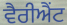
ਵੈਰੀਐਂਟ